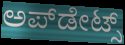
ಅಪ್‌ಡೇಟ್ಸ್